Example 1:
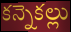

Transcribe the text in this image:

కన్నెకల్లు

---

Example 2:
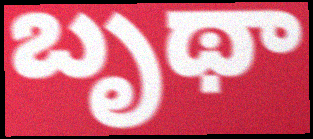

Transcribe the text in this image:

బృథా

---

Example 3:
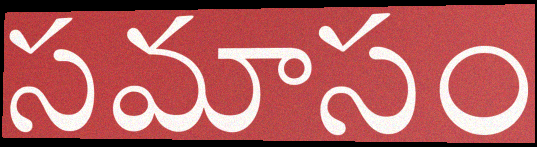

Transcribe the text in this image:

సమాసం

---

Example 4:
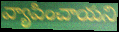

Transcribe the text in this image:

వ్యాపించాయని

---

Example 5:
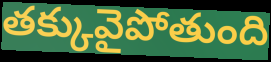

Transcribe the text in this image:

తక్కువైపోతుంది